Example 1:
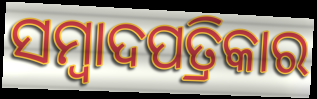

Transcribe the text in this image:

ସମ୍ବାଦପତ୍ରିକାର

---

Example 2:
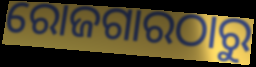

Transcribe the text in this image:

ରୋଜଗାରଠାରୁ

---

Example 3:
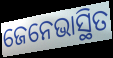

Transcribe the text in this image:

ଜେନେଭାସ୍ଥିତ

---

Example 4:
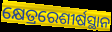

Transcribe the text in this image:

କ୍ଷେତ୍ରରେଶୀର୍ଷସ୍ଥାନ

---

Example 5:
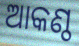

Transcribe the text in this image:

ଆକଣ୍ଠ